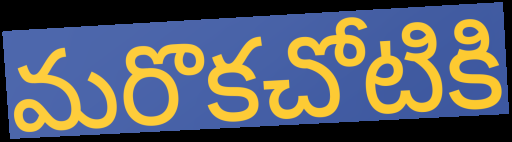
మరొకచోటికి